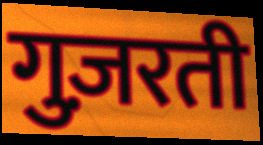
गुज़रती